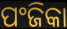
ପଂଜିକା